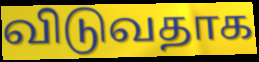
விடுவதாக